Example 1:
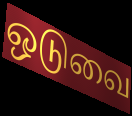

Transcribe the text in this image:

ஒடுவை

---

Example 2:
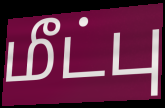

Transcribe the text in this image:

மீட்பு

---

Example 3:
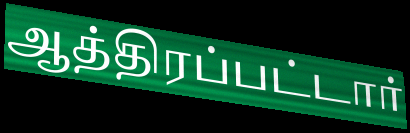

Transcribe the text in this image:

ஆத்திரப்பட்டார்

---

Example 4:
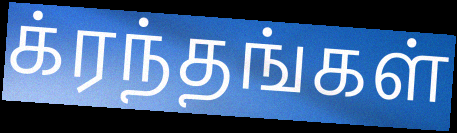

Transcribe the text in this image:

க்ரந்தங்கள்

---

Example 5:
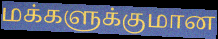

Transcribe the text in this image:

மக்களுக்குமான